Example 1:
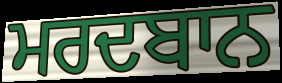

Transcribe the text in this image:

ਮਰਦਬਾਨ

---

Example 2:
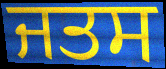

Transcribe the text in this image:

ਜਤਸ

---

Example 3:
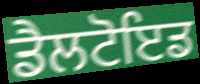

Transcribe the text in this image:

ਡੈਲਟੋਇਡ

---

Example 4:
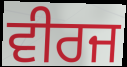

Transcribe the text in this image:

ਵੀਰਜ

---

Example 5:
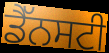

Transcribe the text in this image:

ਡੈੱਨਸਟੀ